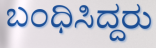
ಬಂಧಿಸಿದ್ದರು